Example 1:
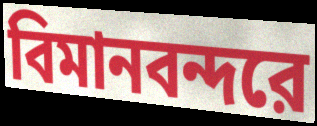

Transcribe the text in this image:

বিমানবন্দরে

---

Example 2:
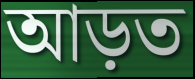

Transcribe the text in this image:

আড়ত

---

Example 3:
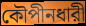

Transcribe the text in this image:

কৌপীনধারী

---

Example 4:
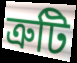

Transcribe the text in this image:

ত্রুটি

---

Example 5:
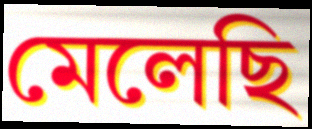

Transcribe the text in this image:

মেলেছি